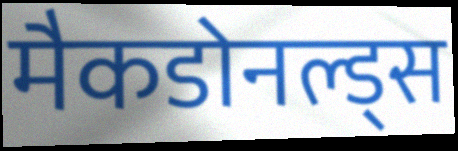
मैकडोनल्ड्स